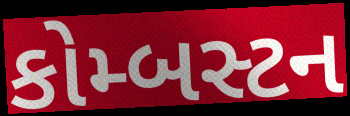
કોમ્બસ્ટન